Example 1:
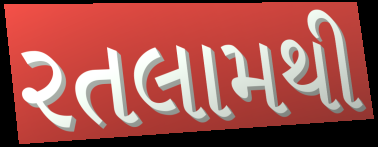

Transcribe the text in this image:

રતલામથી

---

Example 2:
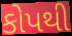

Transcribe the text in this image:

કોપથી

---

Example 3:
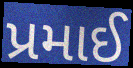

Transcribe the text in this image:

પ્રમાઈ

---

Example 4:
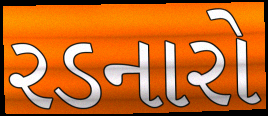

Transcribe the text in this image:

રડનારો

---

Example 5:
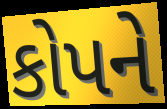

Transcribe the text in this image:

કોપને